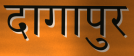
दागापुर